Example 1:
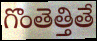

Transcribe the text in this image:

గొంతెత్తితే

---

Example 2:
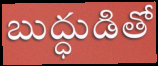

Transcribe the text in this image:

బుద్ధుడితో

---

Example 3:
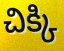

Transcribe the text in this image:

చిక్కి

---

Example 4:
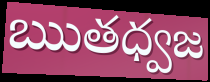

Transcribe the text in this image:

ఋతధ్వజ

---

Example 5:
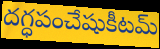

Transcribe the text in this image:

దగ్ధపంచేషుకీటమ్